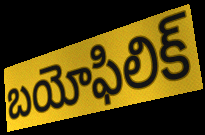
బయోఫిలిక్